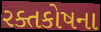
રક્તકોષના